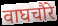
वाघचौरे